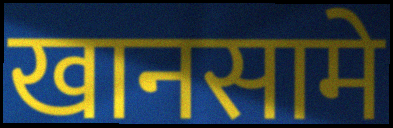
खानसामे